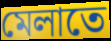
মেলাতে